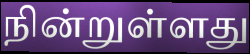
நின்றுள்ளது